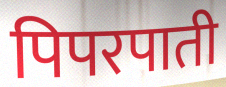
पिपरपाती